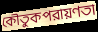
কৌতুকপরায়ণতা